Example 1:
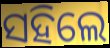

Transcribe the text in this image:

ସହିଲେ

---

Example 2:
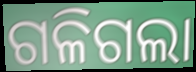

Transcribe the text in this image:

ଗଳିଗଲା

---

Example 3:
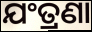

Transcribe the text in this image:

ଯଂତ୍ରଣା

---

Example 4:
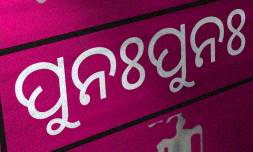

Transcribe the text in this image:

ପୁନଃପୁନଃ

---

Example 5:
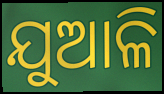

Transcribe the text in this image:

ଯୁଆଳି